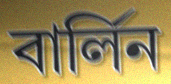
বাৰ্লিন